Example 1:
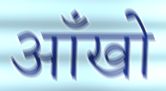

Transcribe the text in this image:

ऑंखो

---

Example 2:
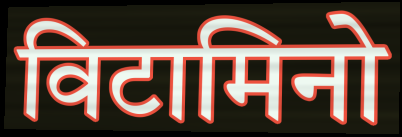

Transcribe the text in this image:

विटामिनो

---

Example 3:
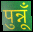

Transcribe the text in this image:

पुन्नूँ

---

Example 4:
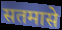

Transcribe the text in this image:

सतमासे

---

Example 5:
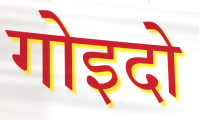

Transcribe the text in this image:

गोइदो